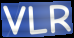
VLR